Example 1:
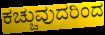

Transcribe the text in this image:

ಕಚ್ಚುವುದರಿಂದ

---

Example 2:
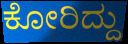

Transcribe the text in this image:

ಕೋರಿದ್ದು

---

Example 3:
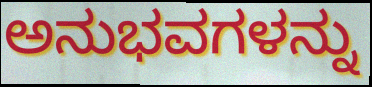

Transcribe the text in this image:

ಅನುಭವಗಳನ್ನು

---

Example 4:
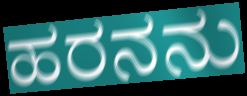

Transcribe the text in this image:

ಹರನನು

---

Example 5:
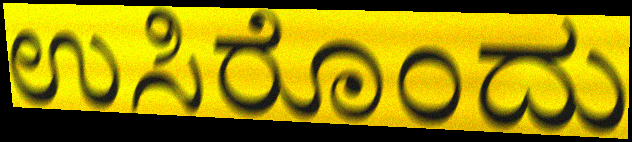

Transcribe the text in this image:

ಉಸಿರೊಂದು